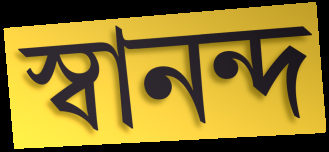
স্বানন্দ